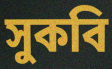
সুকবি